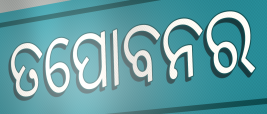
ତପୋବନର